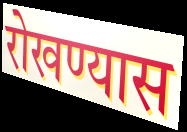
रोखण्यास